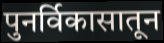
पुनर्विकासातून